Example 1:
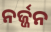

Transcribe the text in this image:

ନର୍ଜ୍ଜନ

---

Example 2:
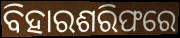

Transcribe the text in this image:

ବିହାରଶରିଫରେ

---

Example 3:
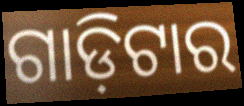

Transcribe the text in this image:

ଗାଡ଼ିଟାର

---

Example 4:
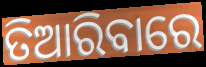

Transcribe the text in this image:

ତିଆରିବାରେ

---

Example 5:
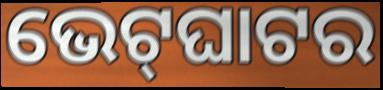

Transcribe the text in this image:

ଭେଟ୍‌ଘାଟର